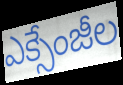
ఎక్సేంజీల